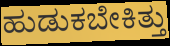
ಹುಡುಕಬೇಕಿತ್ತು